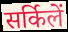
सर्किलें